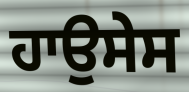
ਹਾਉਸੇਸ